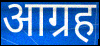
आग्रह